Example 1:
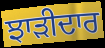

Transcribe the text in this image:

ਝਾੜੀਦਾਰ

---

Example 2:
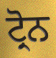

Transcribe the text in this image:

ਟ੍ਰੋਨ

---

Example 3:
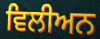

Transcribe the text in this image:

ਵਿਲੀਅਨ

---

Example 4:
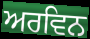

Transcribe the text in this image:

ਅਰਵਿਨ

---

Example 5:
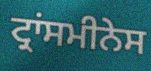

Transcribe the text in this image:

ਟ੍ਰਾਂਸਮੀਨੇਸ